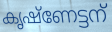
കൃഷ്ണേട്ടന്